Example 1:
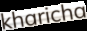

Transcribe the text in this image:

kharicha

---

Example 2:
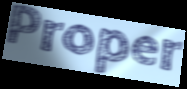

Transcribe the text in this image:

Proper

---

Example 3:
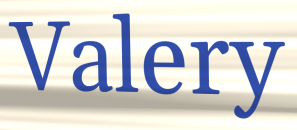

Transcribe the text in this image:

Valery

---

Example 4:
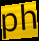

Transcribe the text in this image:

ph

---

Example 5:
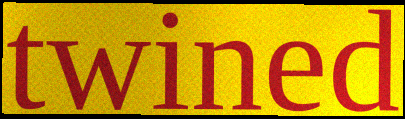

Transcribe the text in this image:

twined